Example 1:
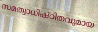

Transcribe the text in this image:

സമത്വാധിഷ്ഠിതവുമായ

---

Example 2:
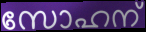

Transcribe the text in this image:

സോഹന്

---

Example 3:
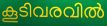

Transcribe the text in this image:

കൂടിവരവിൽ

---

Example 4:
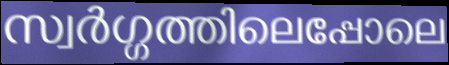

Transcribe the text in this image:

സ്വർഗ്ഗത്തിലെപ്പോലെ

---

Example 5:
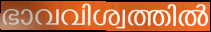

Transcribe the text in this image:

ഭാവവിശ്വത്തിൽ